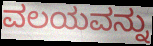
ವಲಯವನ್ನು